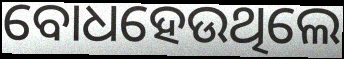
ବୋଧହେଉଥିଲେ